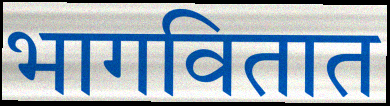
भागवितात